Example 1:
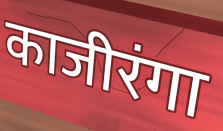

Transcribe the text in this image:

काजीरंगा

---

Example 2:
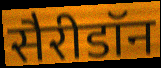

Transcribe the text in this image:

सैरीडॉन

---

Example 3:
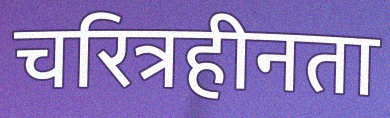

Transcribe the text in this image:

चरित्रहीनता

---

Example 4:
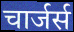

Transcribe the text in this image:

चार्जर्स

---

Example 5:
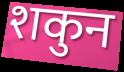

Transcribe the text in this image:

शकुन